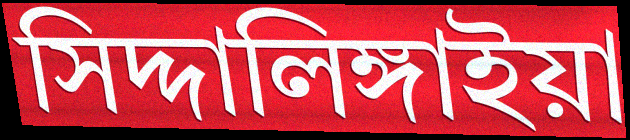
সিদ্দালিঙ্গাইয়া